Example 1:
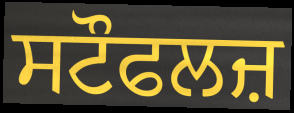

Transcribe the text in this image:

ਸਟੌਫਲਜ਼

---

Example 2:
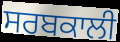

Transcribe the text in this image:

ਸਰਬਕਾਲੀ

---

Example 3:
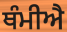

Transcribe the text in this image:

ਥੰਮੀਐ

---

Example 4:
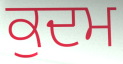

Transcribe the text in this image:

ਕੁਦਮ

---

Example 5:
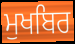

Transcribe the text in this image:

ਮੁਖਬਿਰ